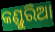
କଣ୍ଡୁରିଆ